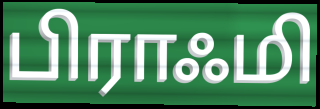
பிராஃமி